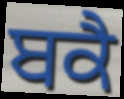
ਬਕੈ